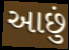
આછું